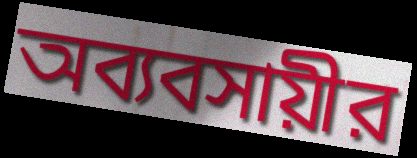
অব্যবসায়ীর